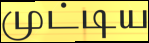
முட்டிய